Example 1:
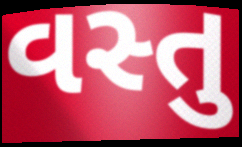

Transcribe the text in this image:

વસ્તુ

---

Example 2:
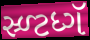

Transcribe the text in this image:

સ્ર્ળ્ટધ્ગૅ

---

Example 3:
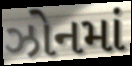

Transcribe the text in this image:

ઝોનમાં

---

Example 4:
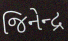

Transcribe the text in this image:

જિનેન્દ્ર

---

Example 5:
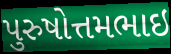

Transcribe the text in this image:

પુરુષોત્તમભાઇ